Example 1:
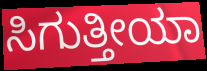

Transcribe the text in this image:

ಸಿಗುತ್ತೀಯಾ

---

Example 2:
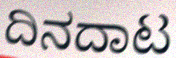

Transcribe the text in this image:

ದಿನದಾಟ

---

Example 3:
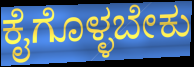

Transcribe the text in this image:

ಕೈಗೊಳ್ಳಬೇಕು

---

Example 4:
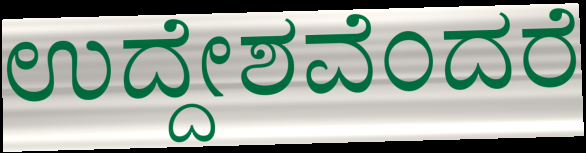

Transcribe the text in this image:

ಉದ್ದೇಶವೆಂದರೆ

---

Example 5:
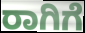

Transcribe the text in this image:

ರಾಗಿಗೆ